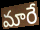
మారే